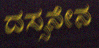
ದಸ್ಸನೇನ